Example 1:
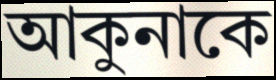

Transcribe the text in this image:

আকুনাকে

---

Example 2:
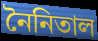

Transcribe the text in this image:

নৈনিতাল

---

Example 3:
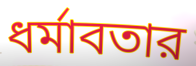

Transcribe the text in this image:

ধর্মাবতার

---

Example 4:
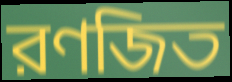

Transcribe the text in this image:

রণজিত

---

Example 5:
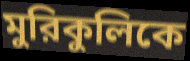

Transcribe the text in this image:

মুরিকুলিকে